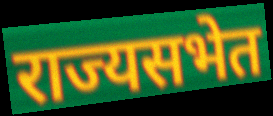
राज्यसभेत